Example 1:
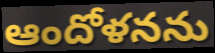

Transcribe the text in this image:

ఆందోళనను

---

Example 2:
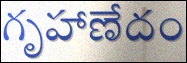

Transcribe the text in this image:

గృహాణేదం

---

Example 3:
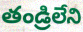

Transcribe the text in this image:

తండ్రిలేని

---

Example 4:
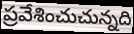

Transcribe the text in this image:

ప్రవేశించుచున్నది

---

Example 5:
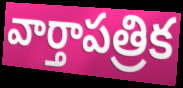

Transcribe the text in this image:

వార్తాపత్రిక